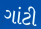
ગાંટી